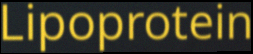
Lipoprotein